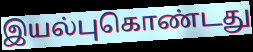
இயல்புகொண்டது